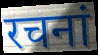
रचनां